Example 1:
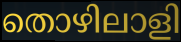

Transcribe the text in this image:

തൊഴിലാളി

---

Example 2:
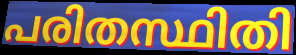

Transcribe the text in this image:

പരിതസ്ഥിതി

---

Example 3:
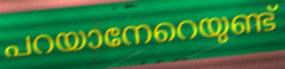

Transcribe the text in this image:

പറയാനേറെയുണ്ട്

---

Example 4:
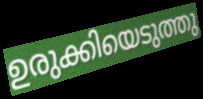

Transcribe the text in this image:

ഉരുക്കിയെടുത്തു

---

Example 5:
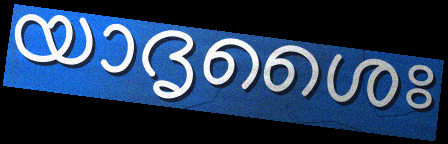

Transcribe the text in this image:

യാദൃശൈഃ